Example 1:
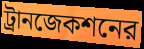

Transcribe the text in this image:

ট্রানজেকশনের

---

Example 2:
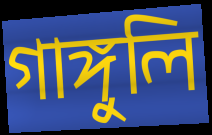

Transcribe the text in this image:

গাঙ্গুলি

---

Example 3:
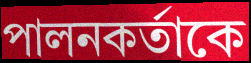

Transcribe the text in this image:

পালনকর্তাকে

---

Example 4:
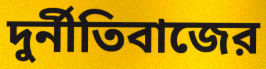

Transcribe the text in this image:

দুর্নীতিবাজের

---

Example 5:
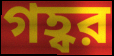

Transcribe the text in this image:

গহ্বর